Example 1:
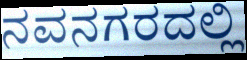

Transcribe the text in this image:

ನವನಗರದಲ್ಲಿ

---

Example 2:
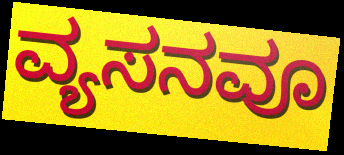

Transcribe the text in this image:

ವ್ಯಸನವೂ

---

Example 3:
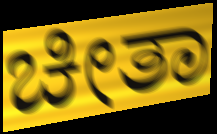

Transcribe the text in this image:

ಚೀತಾ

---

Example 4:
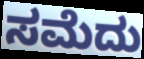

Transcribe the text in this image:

ಸಮೆದು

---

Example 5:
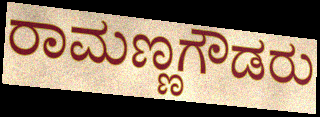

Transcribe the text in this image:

ರಾಮಣ್ಣಗೌಡರು